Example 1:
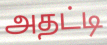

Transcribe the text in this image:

அதட்டி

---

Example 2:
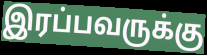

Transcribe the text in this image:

இரப்பவருக்கு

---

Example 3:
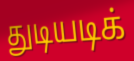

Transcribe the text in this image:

துடியடிக்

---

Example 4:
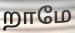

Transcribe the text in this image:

றாமே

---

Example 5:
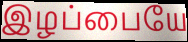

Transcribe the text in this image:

இழப்பையே